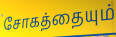
சோகத்தையும்